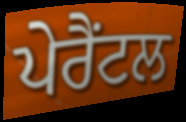
ਪੇਰੈਂਟਲ